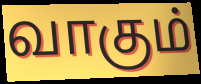
வாகும்